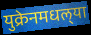
युक्रेनमधल्या